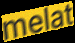
melat